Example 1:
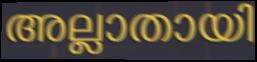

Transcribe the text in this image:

അല്ലാതായി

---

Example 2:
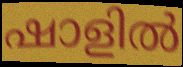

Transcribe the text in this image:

ഷാളിൽ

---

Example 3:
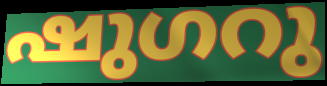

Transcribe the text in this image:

ഷുഗറു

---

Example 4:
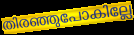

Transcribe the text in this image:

തിരഞ്ഞുപോകില്ലേ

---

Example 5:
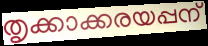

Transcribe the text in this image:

തൃക്കാക്കരയപ്പന്